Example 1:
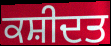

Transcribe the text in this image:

ਕਸ਼ੀਦਤ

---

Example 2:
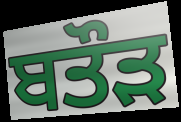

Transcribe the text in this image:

ਬਤੌੜ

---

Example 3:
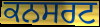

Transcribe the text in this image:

ਕਨਸਰਟ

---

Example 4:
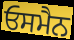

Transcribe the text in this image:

ਓਸਮੈਨ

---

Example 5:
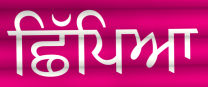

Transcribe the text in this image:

ਛਿੱਪਿਆ